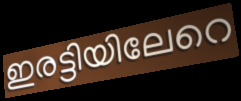
ഇരട്ടിയിലേറെ